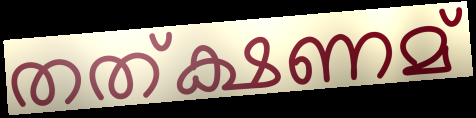
തത്ക്ഷണമ്